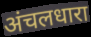
अंचलधारा